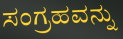
ಸಂಗ್ರಹವನ್ನು